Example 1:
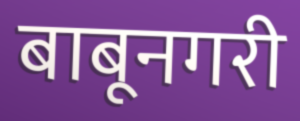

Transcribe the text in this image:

बाबूनगरी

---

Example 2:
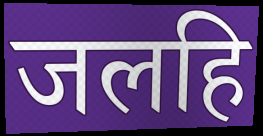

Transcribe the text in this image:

जलहि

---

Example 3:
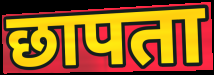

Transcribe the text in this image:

छापता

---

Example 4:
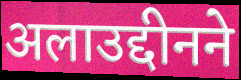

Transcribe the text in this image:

अलाउद्दीनने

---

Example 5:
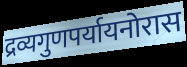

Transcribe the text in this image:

द्रव्यगुणपर्यायनोरास